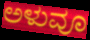
ಅಳುವೂ